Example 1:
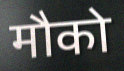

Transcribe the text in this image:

मौको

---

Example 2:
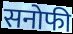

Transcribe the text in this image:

सनोफी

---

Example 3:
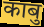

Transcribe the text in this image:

काबु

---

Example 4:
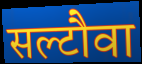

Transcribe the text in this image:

सल्टौवा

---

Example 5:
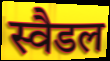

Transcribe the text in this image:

स्वैडल